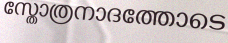
സ്തോത്രനാദത്തോടെ